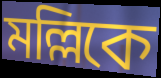
মল্লিকে